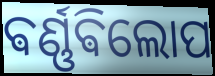
ଵର୍ଣ୍ଣଵିଲୋପ